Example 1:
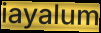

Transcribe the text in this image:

iayalum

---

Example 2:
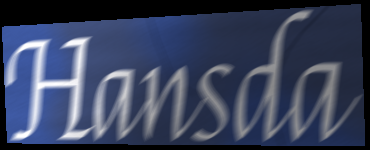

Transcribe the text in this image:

Hansda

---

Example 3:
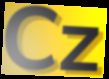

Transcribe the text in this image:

Cz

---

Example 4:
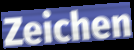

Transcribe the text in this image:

Zeichen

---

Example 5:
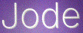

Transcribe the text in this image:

Jode